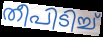
തീപിടിച്ച്